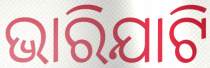
ଭାରିଯାଟି